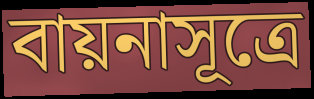
বায়নাসূত্রে